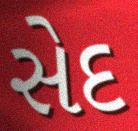
સેદ